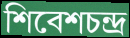
শিবেশচন্দ্র